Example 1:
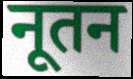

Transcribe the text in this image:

नूतन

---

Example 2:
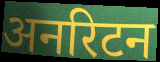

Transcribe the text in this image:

अनरिटन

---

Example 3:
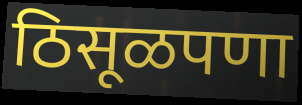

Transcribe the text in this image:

ठिसूळपणा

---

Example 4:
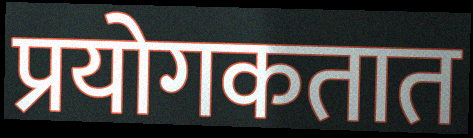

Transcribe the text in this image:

प्रयोगकतात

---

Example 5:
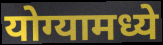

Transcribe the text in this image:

योग्यामध्ये